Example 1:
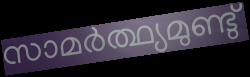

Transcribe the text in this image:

സാമർത്ഥ്യമുണ്ടു്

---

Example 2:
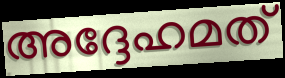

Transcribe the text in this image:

അദ്ദേഹമത്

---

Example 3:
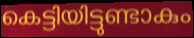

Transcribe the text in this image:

കെട്ടിയിട്ടുണ്ടാകും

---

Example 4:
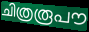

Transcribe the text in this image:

ചിത്രരൂപൗ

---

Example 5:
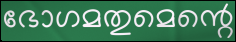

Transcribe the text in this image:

ഭോഗമതുമെന്റെ